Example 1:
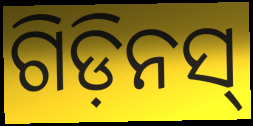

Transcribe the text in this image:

ଗିଡ଼ିନସ୍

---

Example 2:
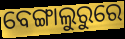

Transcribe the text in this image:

ବେଙ୍ଗାଲୁରୁରେ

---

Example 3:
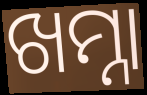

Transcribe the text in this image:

ଖମ୍ନା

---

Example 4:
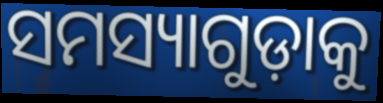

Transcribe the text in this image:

ସମସ୍ୟାଗୁଡ଼ାକୁ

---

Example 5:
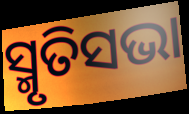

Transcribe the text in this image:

ସ୍ମୃତିସଭା